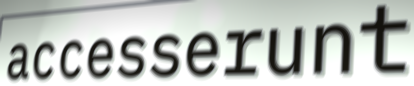
accesserunt